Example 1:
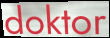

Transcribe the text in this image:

doktor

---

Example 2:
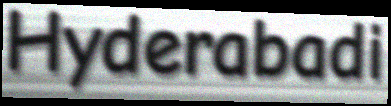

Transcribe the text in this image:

Hyderabadi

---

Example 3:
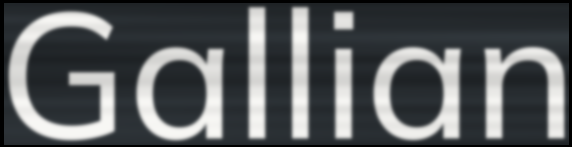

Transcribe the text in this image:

Gallian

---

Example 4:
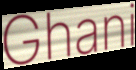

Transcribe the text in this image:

Ghani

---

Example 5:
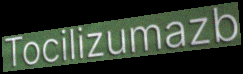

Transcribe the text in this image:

Tocilizumazb